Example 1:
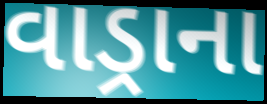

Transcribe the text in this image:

વાડ્રાના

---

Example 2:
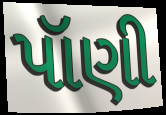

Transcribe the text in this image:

પૉણી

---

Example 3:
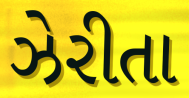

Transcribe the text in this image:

ઝેરીતા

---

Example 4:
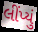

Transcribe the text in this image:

લીંપ્યું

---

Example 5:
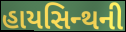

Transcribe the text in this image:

હાયસિન્થની